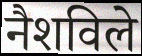
नैशविले